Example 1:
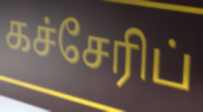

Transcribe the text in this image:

கச்சேரிப்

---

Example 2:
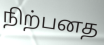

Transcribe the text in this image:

நிற்பனத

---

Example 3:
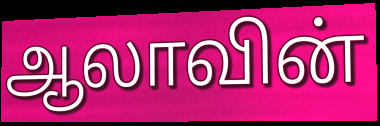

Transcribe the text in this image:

ஆலாவின்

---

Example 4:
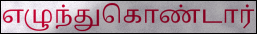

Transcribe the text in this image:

எழுந்துகொண்டார்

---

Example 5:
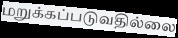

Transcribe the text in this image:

மறுக்கப்படுவதில்லை